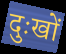
दुःखों